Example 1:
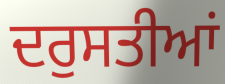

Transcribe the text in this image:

ਦਰੁਸਤੀਆਂ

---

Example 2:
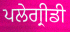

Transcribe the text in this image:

ਪਲੇਗ੍ਰੀਡੀ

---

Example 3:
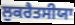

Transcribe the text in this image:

ਲੁਕਰੈਤਸੀਯਾ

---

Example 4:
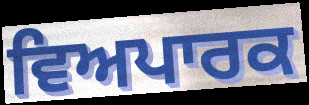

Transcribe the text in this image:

ਵਿਅਪਾਰਕ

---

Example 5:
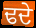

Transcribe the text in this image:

ਢਦੇ